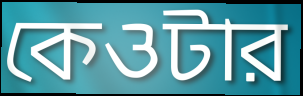
কেওটার